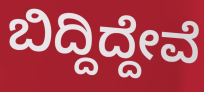
ಬಿದ್ದಿದ್ದೇವೆ